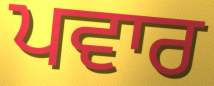
ਪਵਾਰ